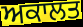
ਅਕਾਲਤ